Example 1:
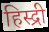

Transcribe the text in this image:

हिस्द्री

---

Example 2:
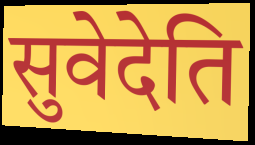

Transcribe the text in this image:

सुवेदेति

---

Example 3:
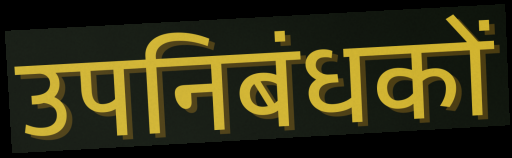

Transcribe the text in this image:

उपनिबंधकों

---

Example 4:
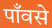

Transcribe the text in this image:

पाँवसे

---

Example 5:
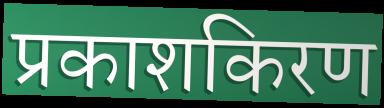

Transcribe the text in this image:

प्रकाशकिरण